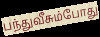
பந்துவீசும்போது